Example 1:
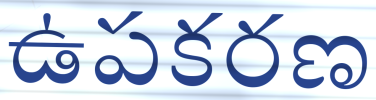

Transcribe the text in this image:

ఉపకరణ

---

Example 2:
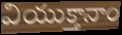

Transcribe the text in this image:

వియుక్తానాం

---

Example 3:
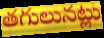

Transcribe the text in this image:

తగులునట్లు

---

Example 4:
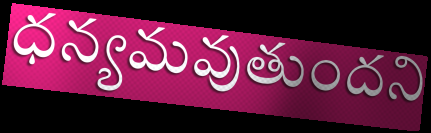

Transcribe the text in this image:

ధన్యమవుతుందని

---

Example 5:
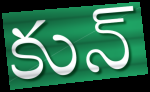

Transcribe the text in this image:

కున్